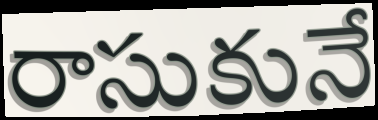
రాసుకునే